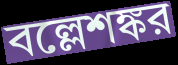
বল্লেশঙ্কর